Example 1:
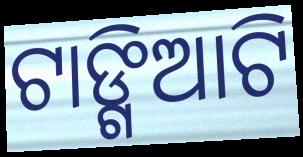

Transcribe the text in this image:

ଟାଙ୍ଗିଆଟି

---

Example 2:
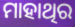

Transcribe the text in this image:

ମାହାଥିର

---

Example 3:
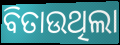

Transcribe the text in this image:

ବିତାଉଥିଲା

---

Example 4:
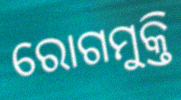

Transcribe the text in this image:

ରୋଗମୁକ୍ତି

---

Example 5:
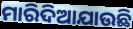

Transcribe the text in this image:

ମାରିଦିଆଯାଉଛି